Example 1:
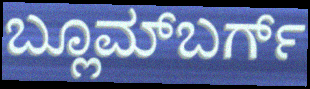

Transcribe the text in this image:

ಬ್ಲೂಮ್‌ಬರ್ಗ್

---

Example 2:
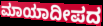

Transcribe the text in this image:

ಮಾಯಾದೀಪದ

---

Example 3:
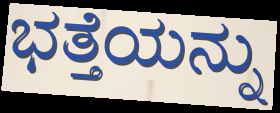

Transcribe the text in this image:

ಭತ್ತೆಯನ್ನು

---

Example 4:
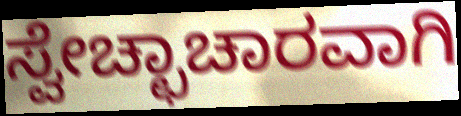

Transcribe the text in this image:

ಸ್ವೇಚ್ಛಾಚಾರವಾಗಿ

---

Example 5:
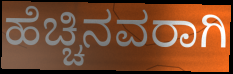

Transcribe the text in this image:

ಹೆಚ್ಚಿನವರಾಗಿ